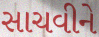
સાચવીને